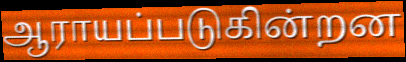
ஆராயப்படுகின்றன